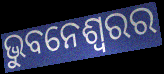
ଭୁବନେଶ୍ୱରର